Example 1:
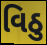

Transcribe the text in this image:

વિઠુ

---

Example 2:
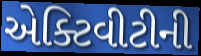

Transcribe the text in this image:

એક્ટિવીટીની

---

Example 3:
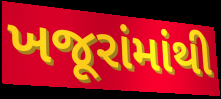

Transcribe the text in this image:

ખજૂરાંમાંથી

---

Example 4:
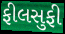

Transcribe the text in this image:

ફીલસુફી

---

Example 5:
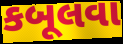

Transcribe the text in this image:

કબૂલવા